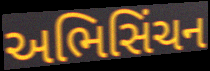
અભિસિંચન